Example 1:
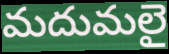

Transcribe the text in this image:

మదుమలై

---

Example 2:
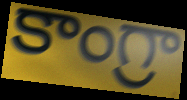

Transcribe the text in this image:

కాంగ్రా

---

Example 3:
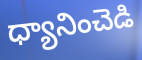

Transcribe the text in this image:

ధ్యానించెడి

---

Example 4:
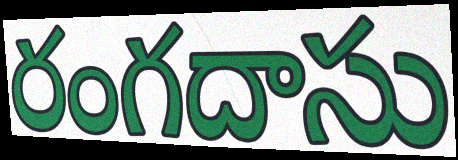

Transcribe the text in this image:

రంగదాసు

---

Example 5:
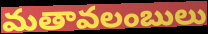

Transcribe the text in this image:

మతావలంబులు